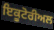
ਇਕੂਟੋਰੀਅਲ